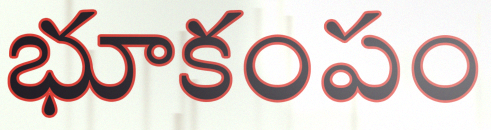
భూకంపం